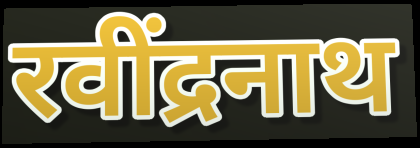
रवींद्रनाथ